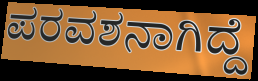
ಪರವಶನಾಗಿದ್ದೆ